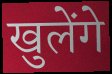
खुलेंगे